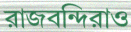
রাজবন্দিরাও